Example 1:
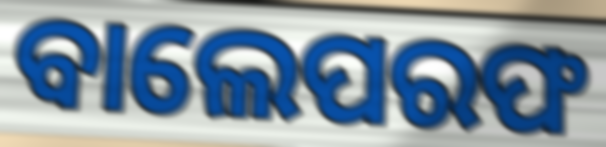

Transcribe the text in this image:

ବାଲେପରଫ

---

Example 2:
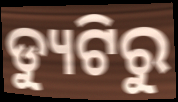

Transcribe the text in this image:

ଡ୍ୟୁଟିରୁ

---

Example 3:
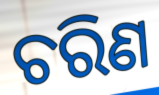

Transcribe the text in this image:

ଚରିଣ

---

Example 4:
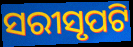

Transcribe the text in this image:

ସରୀସୃପଟି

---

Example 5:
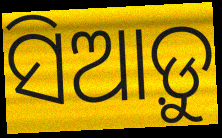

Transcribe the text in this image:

ସିଆଡ଼ୁ